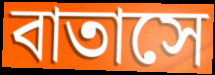
বাতাসে